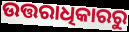
ଉତ୍ତରାଧିକାରରୁ